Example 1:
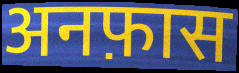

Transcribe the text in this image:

अनफ़ास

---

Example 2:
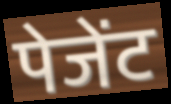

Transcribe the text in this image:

पेजेंट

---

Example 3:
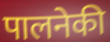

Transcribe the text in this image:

पालनेकी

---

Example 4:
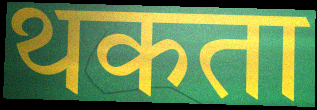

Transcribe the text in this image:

थकता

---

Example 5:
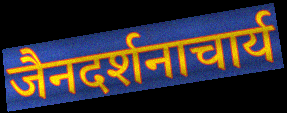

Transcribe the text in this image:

जैनदर्शनाचार्य